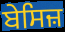
ਬੇਸਿਜ਼